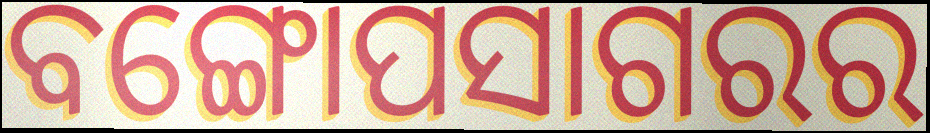
ବଙ୍ଗୋପସାଗରର